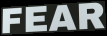
FEAR